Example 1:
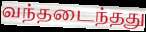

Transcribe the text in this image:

வந்தடைந்தது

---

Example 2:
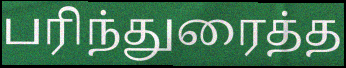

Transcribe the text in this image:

பரிந்துரைத்த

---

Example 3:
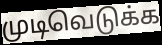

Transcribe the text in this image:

முடிவெடுக்க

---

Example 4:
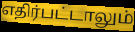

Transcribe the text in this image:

எதிர்பட்டாலும்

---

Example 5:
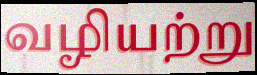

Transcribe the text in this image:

வழியற்று